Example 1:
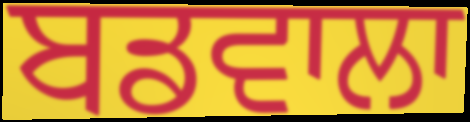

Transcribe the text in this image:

ਬਡਵਾਲਾ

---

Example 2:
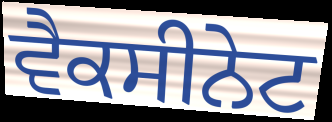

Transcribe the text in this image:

ਵੈਕਸੀਨੇਟ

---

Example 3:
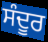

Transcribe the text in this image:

ਸੰਦੂਰ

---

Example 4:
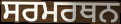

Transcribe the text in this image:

ਸਰਮਰਥਨ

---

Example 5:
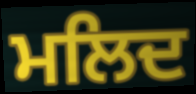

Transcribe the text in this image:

ਮਲਿਦ